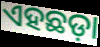
ଏହଛଡ଼ା